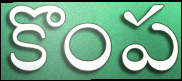
కొంప